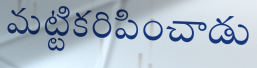
మట్టికరిపించాడు